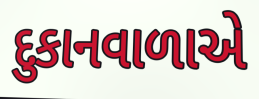
દુકાનવાળાએ